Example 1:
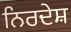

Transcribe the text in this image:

ਨਿਰਦੇਸ਼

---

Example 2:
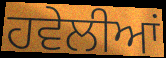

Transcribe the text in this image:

ਹਵੇਲੀਆਂ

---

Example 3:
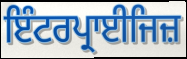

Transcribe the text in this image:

ਇੰਟਰਪ੍ਰਾਈਜਿਜ਼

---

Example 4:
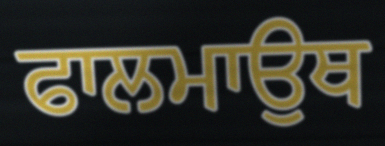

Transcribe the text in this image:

ਫਾਲਮਾਉਥ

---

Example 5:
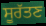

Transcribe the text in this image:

ਸੂਰੱਤਣ